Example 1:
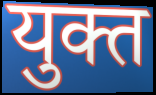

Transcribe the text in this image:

युक्त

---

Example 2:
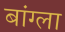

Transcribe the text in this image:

बांग्ला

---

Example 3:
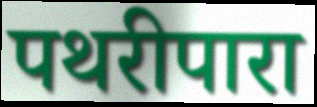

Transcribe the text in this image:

पथरीपारा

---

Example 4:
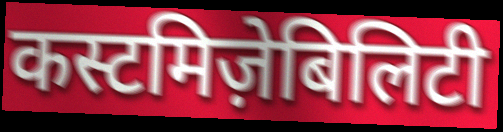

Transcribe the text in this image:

कस्टमिज़ेबिलिटी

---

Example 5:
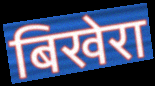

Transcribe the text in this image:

बिखेरा